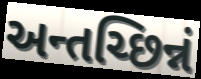
અન્તચ્છિન્નં